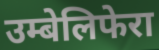
उम्बेलिफेरा